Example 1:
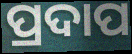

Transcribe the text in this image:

ପ୍ରଦାପ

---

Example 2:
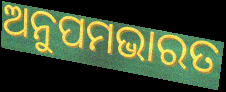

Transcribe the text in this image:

ଅନୁପମଭାରତ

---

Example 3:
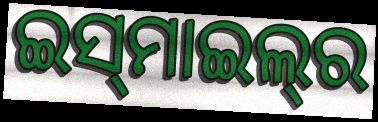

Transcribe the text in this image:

ଇସ୍‌ମାଇଲ୍‌ର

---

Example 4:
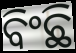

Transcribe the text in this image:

ବିଂଛି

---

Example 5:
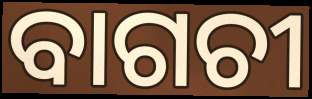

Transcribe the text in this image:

ବାଗଚୀ